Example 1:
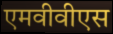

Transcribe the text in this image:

एमवीवीएस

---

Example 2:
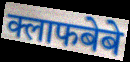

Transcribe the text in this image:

क्लाफबेबे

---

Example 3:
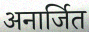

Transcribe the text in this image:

अनार्जित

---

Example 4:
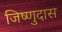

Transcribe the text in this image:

जिष्णुदास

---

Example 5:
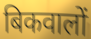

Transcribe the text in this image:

बिकवालों